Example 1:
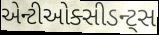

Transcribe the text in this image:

એન્ટીઓક્સીડન્ટ્સ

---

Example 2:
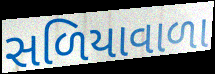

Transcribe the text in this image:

સળિયાવાળા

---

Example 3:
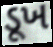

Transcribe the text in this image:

ડૂખ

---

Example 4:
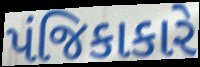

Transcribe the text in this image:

પંજિકાકારે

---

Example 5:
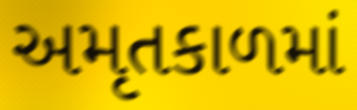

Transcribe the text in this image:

અમૃતકાળમાં